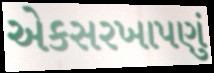
એકસરખાપણું